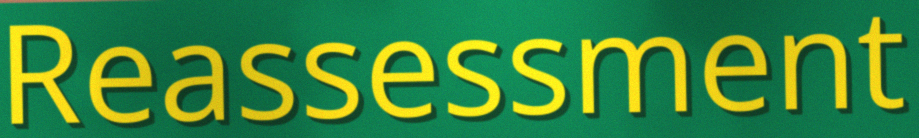
Reassessment